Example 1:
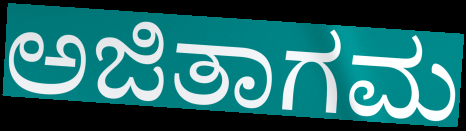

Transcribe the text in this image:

ಅಜಿತಾಗಮ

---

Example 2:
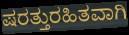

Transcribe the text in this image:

ಷರತ್ತುರಹಿತವಾಗಿ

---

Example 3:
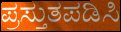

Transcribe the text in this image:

ಪ್ರಸ್ತುತಪಡಿಸಿ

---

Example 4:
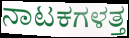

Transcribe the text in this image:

ನಾಟಕಗಳತ್ತ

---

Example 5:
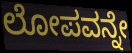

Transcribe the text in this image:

ಲೋಪವನ್ನೇ